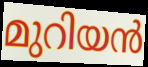
മുറിയൻ